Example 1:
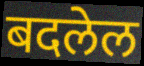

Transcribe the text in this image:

बदलेल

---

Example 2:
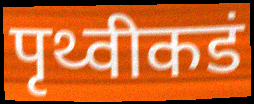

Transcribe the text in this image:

पृथ्वीकडं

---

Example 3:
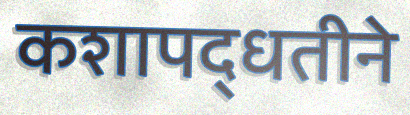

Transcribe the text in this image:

कशापद्धतीने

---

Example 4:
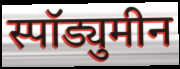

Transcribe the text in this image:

स्पॉड्युमीन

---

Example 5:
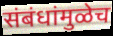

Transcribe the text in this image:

संबंधांमुळेच